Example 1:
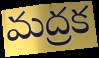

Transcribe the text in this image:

మద్రక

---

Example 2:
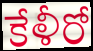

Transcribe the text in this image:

కేళీరో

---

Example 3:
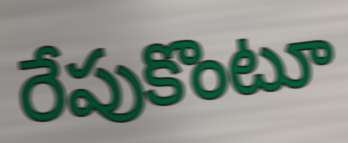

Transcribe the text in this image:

రేపుకొంటూ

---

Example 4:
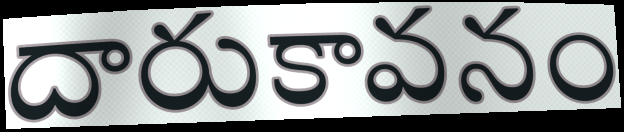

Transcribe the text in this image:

దారుకావనం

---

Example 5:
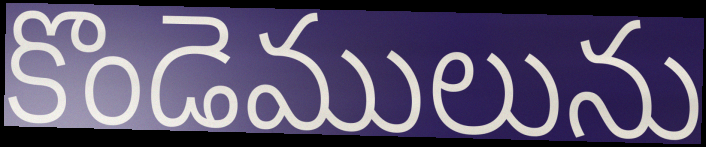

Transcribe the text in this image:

కొండెములును